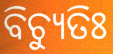
ବିଚ୍ୟୁତିଃ